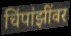
चिंपांझींवर